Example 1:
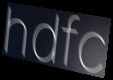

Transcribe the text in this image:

hdfc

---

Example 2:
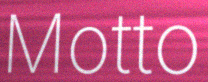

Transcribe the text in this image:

Motto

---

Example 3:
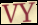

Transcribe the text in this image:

VY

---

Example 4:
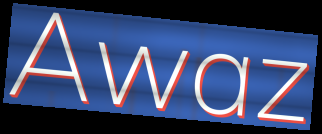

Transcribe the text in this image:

Awaz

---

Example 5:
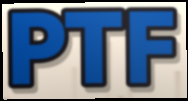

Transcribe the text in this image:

PTF